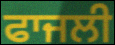
ਫਾਜਲੀ